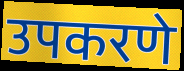
उपकरणे